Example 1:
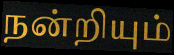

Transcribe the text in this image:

நன்றியும்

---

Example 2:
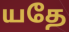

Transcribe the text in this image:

யதே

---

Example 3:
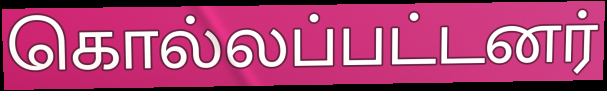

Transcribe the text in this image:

கொல்லப்பட்டனர்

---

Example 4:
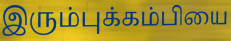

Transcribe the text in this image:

இரும்புக்கம்பியை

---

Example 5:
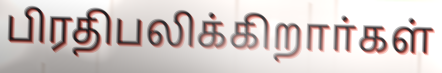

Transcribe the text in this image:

பிரதிபலிக்கிறார்கள்